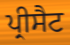
ਪ੍ਰੀਸੈਟ